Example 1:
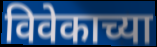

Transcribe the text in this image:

विवेकाच्या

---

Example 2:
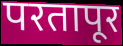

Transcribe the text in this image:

परतापूर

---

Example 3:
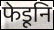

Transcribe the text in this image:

फेडूनि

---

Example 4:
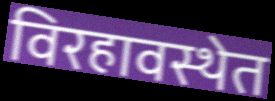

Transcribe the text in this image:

विरहावस्थेत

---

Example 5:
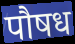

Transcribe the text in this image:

पौषध